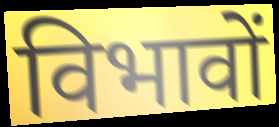
विभावों